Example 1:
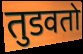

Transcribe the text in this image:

तुडवतो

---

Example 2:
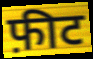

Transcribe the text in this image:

फ़ीट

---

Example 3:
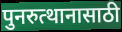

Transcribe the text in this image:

पुनरुत्थानासाठी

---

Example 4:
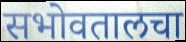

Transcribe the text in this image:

सभोवतालचा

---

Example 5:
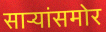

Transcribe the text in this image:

साऱ्यांसमोर